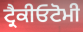
ਟ੍ਰੈਕੀਓਟੋਮੀ